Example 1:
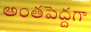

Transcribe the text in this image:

అంతపెద్దగా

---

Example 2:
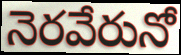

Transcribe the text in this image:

నెరవేరునో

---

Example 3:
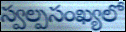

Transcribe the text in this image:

స్వల్పసంఖ్యలో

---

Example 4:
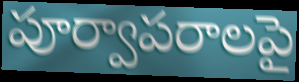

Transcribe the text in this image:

పూర్వాపరాలపై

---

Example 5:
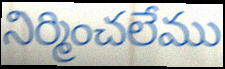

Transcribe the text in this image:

నిర్మించలేము